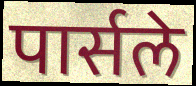
पार्सले